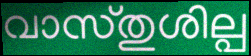
വാസ്തുശില്പ